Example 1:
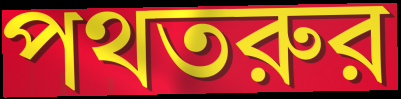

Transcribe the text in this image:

পথতরুর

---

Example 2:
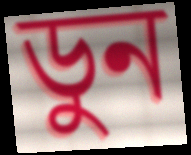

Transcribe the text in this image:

ডুন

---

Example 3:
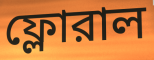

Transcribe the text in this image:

ফ্লোরাল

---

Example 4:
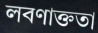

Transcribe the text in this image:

লবণাক্ততা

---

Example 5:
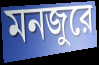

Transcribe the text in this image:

মনজুরে